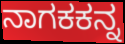
ನಾಗಕಕನ್ನ